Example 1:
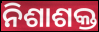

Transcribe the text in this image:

ନିଶାଶକ୍ତ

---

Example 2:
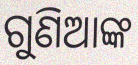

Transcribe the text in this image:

ଗୁଣିଆଙ୍କ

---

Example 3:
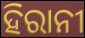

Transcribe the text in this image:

ହିରାନୀ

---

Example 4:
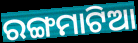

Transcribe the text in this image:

ରଙ୍ଗମାଟିଆ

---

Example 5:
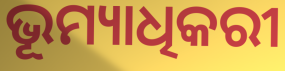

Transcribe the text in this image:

ଭୂମ୍ୟାଧିକରୀ